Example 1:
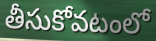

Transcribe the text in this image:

తీసుకోవటంలో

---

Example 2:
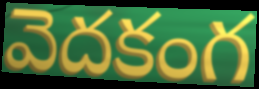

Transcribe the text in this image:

వెదకంగ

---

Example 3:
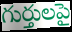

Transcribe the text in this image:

గుర్తులపై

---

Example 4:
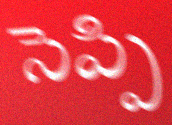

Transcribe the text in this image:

సెప్పి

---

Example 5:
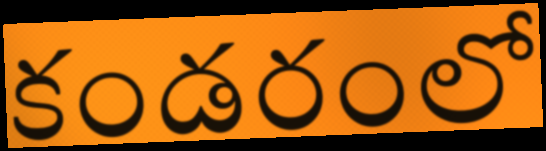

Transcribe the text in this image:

కండరంలో